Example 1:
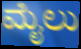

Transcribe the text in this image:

ಮೈಲು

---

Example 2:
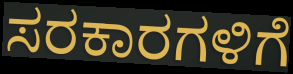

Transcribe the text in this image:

ಸರಕಾರಗಳಿಗೆ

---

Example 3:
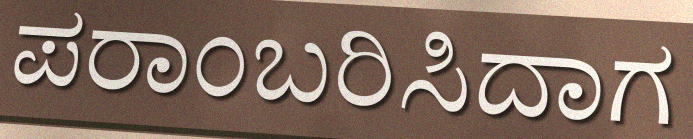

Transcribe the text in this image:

ಪರಾಂಬರಿಸಿದಾಗ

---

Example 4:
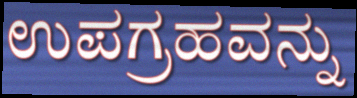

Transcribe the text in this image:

ಉಪಗ್ರಹವನ್ನು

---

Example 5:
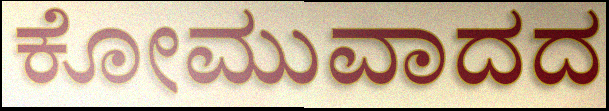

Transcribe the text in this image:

ಕೋಮುವಾದದ